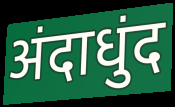
अंदाधुंद